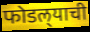
फोडल्याची